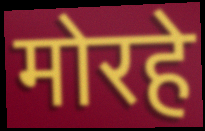
मोरहे